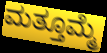
ಮತ್ತೂಮ್ಮೆ